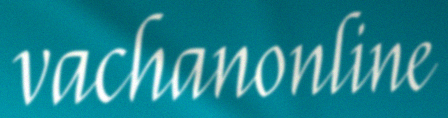
vachanonline